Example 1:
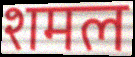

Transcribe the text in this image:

शमल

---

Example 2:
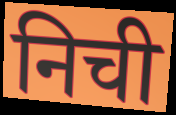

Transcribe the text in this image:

निची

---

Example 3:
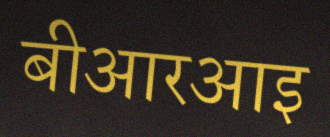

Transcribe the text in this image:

बीआरआइ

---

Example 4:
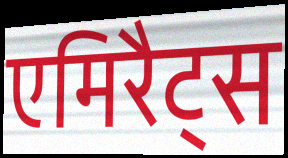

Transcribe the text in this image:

एमिरैट्स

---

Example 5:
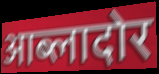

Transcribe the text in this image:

आब्लादोर